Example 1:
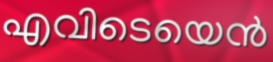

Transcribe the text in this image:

എവിടെയെൻ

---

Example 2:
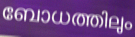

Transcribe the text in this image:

ബോധത്തിലും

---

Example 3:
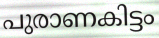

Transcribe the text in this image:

പുരാണകിട്ടം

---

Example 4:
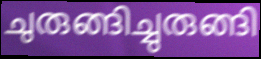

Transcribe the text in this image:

ചുരുങ്ങിച്ചുരുങ്ങി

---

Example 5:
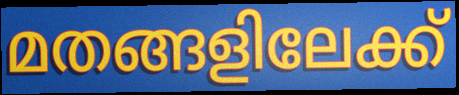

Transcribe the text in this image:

മതങ്ങളിലേക്ക്